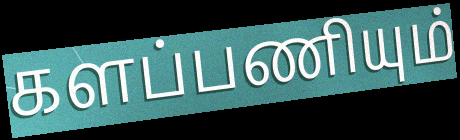
களப்பணியும்